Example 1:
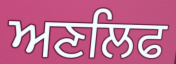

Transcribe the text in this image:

ਅਣਲਿਫ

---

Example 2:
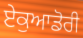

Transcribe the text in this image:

ਏਕੁਆਡੋਰੀ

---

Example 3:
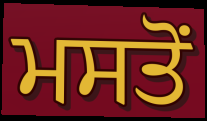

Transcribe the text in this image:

ਮਸਤੋਂ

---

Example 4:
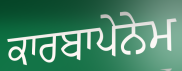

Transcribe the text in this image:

ਕਾਰਬਾਪੇਨੇਮ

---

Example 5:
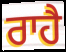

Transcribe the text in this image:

ਰਾਹੈ